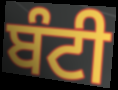
ਬੰਟੀ